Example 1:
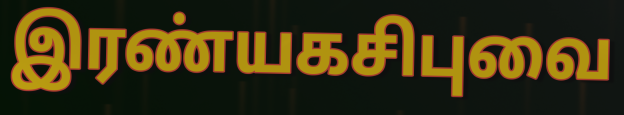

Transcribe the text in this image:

இரண்யகசிபுவை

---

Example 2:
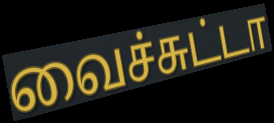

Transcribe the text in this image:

வைச்சுட்டா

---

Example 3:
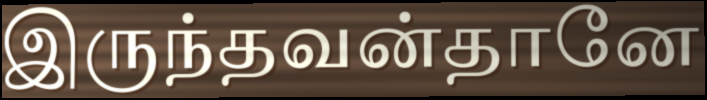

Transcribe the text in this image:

இருந்தவன்தானே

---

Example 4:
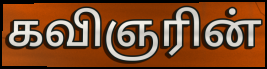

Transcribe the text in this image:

கவிஞரின்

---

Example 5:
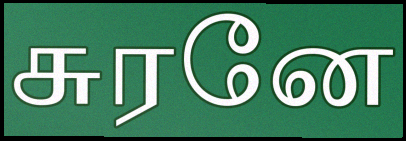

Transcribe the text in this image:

சுரனே